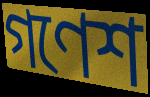
গণেশ